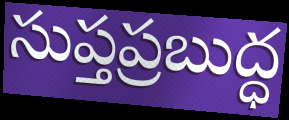
సుప్తప్రబుద్ధ